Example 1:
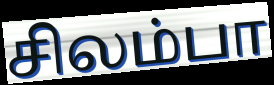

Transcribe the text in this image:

சிலம்பா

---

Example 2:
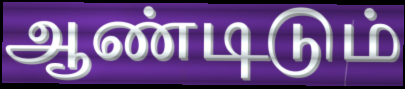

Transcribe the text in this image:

ஆண்டிடும்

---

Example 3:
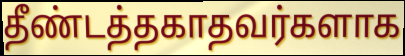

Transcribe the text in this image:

தீண்டத்தகாதவர்களாக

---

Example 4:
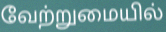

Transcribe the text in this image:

வேற்றுமையில்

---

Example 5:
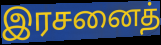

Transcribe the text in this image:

இரசனைத்